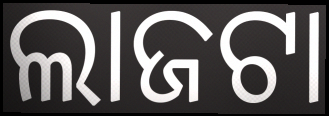
ଲାଜଟା